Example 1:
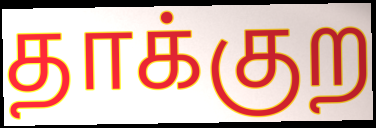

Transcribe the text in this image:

தாக்குற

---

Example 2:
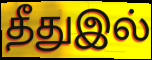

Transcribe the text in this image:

தீதுஇல்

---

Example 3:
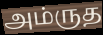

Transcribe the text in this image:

அம்ருத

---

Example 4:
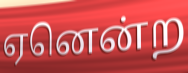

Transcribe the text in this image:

ஏனென்ற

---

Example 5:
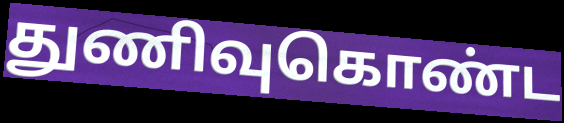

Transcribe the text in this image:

துணிவுகொண்ட